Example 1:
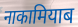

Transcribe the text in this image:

नाकामियाब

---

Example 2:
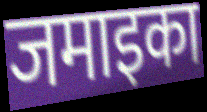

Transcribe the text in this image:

जमाइका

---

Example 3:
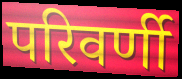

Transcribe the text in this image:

परिवर्णी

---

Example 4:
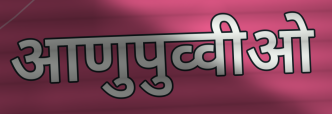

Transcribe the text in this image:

आणुपुव्वीओ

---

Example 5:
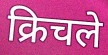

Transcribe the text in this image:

क्रिचले